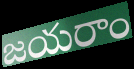
జయరాం